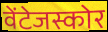
वेंटेजस्कोर